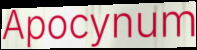
Apocynum